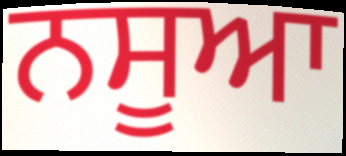
ਨਸੂਆ